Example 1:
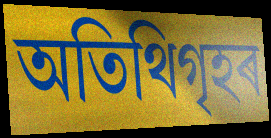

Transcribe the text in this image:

অতিথিগৃহৰ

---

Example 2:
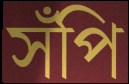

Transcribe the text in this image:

সঁপি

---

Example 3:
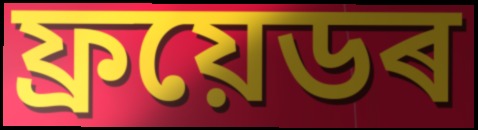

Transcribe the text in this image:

ফ্ৰয়েডৰ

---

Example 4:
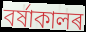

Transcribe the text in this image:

বৰ্ষাকালৰ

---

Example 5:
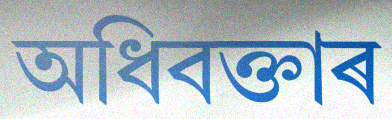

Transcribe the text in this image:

অধিবক্তাৰ